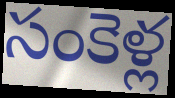
సంకెళ్ల